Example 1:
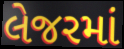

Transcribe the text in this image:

લેજરમાં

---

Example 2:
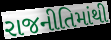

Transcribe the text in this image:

રાજનીતિમાંથી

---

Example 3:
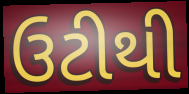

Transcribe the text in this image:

ઉટીથી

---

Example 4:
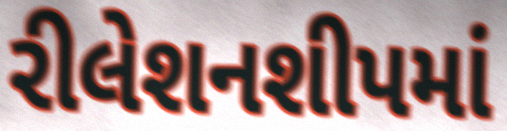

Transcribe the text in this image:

રીલેશનશીપમાં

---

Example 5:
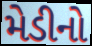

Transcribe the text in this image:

મેડીનો